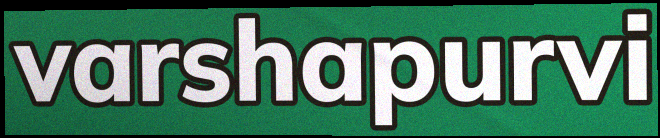
varshapurvi